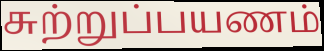
சுற்றுப்பயணம்